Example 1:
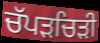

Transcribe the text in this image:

ਚੱਪੜਚਿੜੀ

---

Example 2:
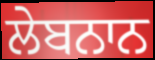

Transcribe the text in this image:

ਲੇਬਨਾਨ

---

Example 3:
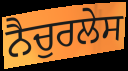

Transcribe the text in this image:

ਨੈਚੁਰਲੇਸ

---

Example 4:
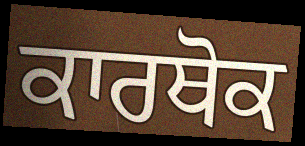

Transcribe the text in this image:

ਕਾਰਥੋਕ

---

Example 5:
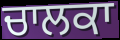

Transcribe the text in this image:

ਚਾਲਕਾ